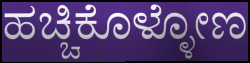
ಹಚ್ಚಿಕೊಳ್ಳೋಣ